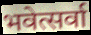
भवेत्सर्वा